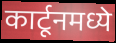
कार्टूनमध्ये